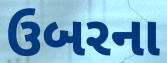
ઉબરના